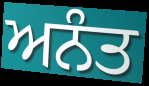
ਅਨੰਤ